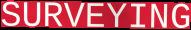
SURVEYING